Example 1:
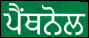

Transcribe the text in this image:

ਪੈਂਥਨੋਲ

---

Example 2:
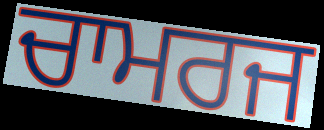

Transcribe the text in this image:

ਚਾਮਰਜ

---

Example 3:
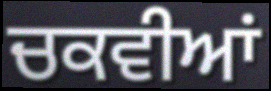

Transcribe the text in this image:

ਚਕਵੀਆਂ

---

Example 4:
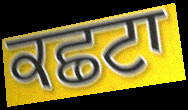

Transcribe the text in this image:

ਕਛਟਾ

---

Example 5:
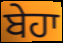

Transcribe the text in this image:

ਬੇਹਾ